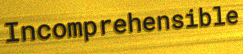
Incomprehensible